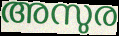
അസുര